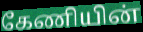
கேணியின்